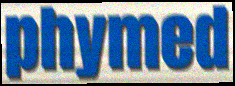
phymed